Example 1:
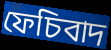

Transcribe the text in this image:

ফেচিবাদ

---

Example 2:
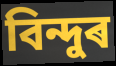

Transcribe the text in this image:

বিন্দুৰ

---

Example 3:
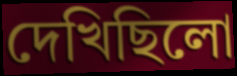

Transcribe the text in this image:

দেখিছিলো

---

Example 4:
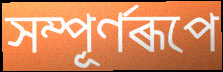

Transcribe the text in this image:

সম্পূৰ্ণৰূপে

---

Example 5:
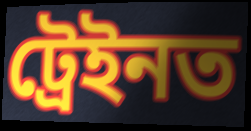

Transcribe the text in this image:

ট্ৰেইনত